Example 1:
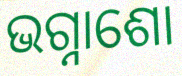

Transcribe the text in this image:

ଭଗ୍ନାଶୋ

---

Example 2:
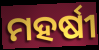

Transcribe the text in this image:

ମହର୍ଷୀ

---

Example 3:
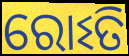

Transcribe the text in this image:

ରୋଽତି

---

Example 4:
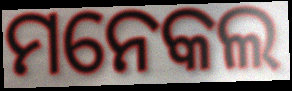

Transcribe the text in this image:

ମନେକଲ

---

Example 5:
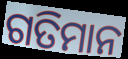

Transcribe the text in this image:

ଗତିମାନ